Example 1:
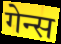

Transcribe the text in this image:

गेन्स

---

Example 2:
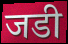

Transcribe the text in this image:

जडी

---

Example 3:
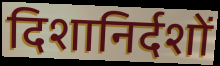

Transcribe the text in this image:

दिशानिर्दशों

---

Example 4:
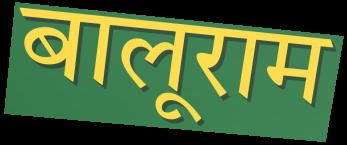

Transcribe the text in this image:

बालूराम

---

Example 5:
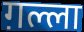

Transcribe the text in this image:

ग़ल्ला